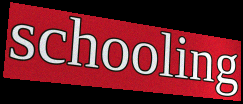
schooling